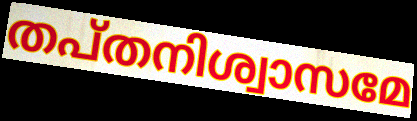
തപ്തനിശ്വാസമേ